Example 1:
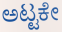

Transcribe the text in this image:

ಅಟ್ಟಕೇ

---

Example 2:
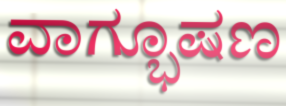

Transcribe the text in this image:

ವಾಗ್ಭೂಷಣ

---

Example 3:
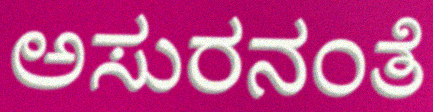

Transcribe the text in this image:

ಅಸುರನಂತೆ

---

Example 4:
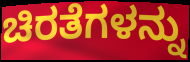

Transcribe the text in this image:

ಚಿರತೆಗಳನ್ನು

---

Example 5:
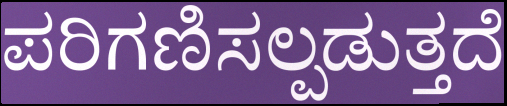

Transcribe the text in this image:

ಪರಿಗಣಿಸಲ್ಪಡುತ್ತದೆ